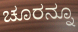
ಚೂರನ್ನೂ